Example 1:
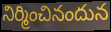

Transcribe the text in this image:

నిర్మించినందున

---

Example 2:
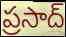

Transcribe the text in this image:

ప్రసాద్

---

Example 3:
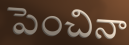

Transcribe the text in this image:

పెంచినా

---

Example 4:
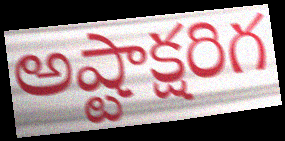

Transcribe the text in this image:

అష్టాక్షరిగ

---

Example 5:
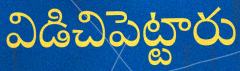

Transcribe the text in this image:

విడిచిపెట్టారు